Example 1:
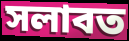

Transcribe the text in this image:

সলাবত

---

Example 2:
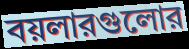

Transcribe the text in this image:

বয়লারগুলোর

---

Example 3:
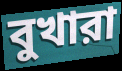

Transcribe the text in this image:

বুখারা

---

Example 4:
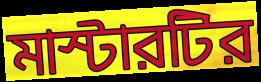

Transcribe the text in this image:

মাস্টারটির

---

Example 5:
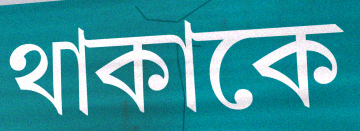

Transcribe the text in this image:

থাকাকে